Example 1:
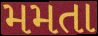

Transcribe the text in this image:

મમતા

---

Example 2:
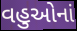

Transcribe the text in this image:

વહુઓનાં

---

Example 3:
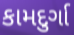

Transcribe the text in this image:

કામદુર્ગા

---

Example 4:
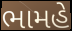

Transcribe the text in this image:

ભામહે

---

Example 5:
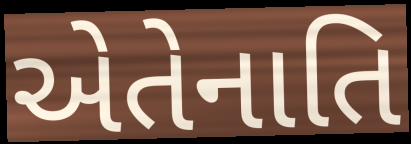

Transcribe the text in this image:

એતેનાતિ